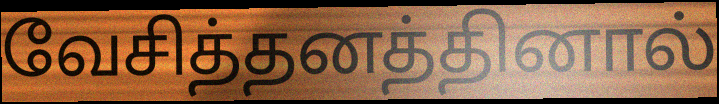
வேசித்தனத்தினால்